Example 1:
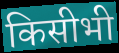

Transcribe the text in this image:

किसीभी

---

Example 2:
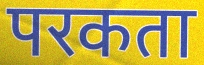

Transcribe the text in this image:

परकता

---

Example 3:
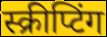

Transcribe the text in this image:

स्क्रीप्टिंग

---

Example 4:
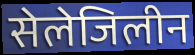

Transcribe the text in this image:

सेलेजिलीन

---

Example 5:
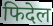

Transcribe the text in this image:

फिदेल